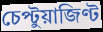
চেপ্টুয়াজিণ্ট